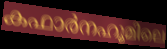
കഫാർനഹൂമിലെ